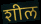
शील